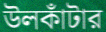
উলকাঁটার